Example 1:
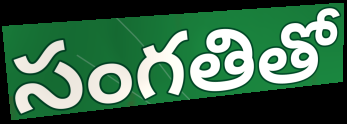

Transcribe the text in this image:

సంగతితో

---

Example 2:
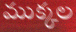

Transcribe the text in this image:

ముక్కల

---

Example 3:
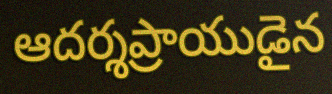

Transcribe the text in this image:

ఆదర్శప్రాయుడైన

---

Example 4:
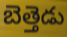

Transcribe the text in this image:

బెత్తెడు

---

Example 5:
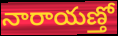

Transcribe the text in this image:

నారాయణ్తో